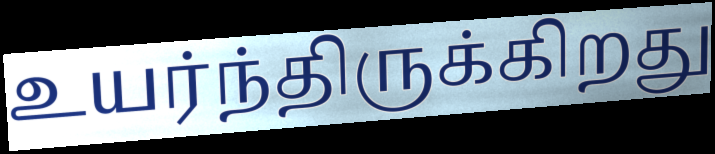
உயர்ந்திருக்கிறது